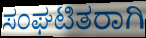
ಸಂಘಟಿತರಾಗಿ